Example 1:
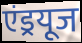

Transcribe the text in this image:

एंड्रयूज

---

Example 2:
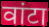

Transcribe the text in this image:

वांटा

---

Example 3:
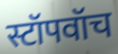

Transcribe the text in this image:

स्टॉपवॉच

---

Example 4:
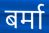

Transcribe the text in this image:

बर्मा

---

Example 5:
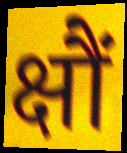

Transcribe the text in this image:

क्षौं